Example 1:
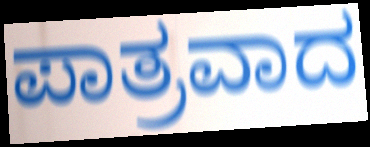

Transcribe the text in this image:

ಪಾತ್ರವಾದ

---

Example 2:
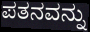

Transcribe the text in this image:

ಪತನವನ್ನು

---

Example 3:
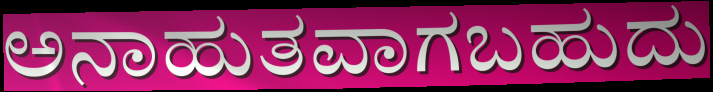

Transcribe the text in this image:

ಅನಾಹುತವಾಗಬಹುದು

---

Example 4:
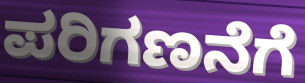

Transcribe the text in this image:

ಪರಿಗಣನೆಗೆ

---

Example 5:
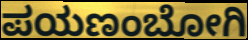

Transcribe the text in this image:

ಪಯಣಂಬೋಗಿ